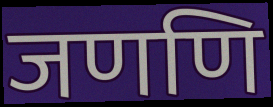
जणणि